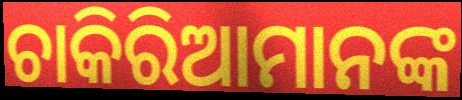
ଚାକିରିଆମାନଙ୍କ